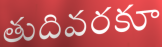
తుదివరకూ